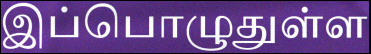
இப்பொழுதுள்ள